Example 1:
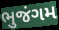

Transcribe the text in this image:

ભુજંગમ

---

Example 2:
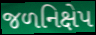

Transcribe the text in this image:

જળનિક્ષેપ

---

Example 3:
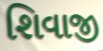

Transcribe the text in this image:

શિવાજી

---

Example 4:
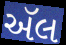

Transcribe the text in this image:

ઍલ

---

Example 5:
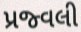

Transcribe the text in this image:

પ્રજ્વલી